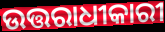
ଉତ୍ତରାଧୀକାରୀ